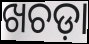
ଖଚଡ଼ା